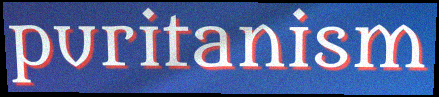
puritanism